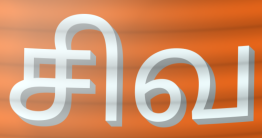
சிவ